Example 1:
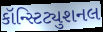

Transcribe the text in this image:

કૉન્સ્ટિટ્યુશનલ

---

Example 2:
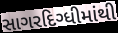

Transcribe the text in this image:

સાગરદિગ્ધીમાંથી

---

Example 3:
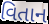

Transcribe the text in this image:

વિતાન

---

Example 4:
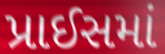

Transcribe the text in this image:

પ્રાઈસમાં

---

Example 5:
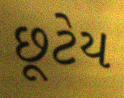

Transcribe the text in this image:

છૂટેય